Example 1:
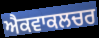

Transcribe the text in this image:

ਐਕਵਾਕਲਚਰ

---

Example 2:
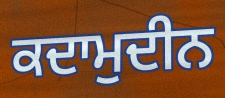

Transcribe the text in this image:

ਕਦਾਮੁਦੀਨ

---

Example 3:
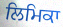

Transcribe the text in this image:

ਲਿਮਿਕਾ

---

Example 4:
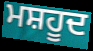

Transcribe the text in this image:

ਮਸ਼ਹੂਦ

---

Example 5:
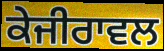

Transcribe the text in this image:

ਕੇਜੀਰਾਵਲ